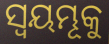
ସ୍ଵୟମ୍ଭୂକୁ